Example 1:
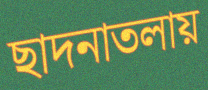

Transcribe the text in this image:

ছাদনাতলায়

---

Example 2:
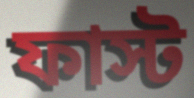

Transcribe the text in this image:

ফাস্ট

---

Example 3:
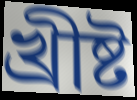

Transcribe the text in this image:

খ্রীষ্ট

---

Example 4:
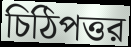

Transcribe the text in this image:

চিঠিপত্তর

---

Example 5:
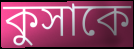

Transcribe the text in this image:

কুসাকে